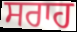
ਸਰਾਹ